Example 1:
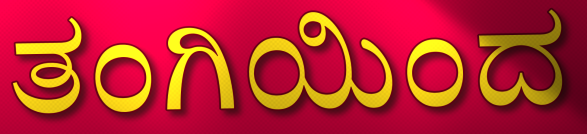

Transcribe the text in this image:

ತಂಗಿಯಿಂದ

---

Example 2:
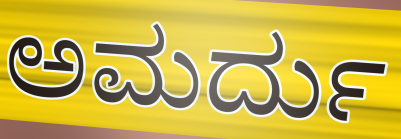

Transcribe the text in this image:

ಅಮರ್ದು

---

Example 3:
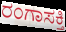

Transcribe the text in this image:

ರಂಗಾಸಕ್ತಿ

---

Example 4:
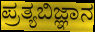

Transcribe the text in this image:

ಪ್ರತ್ಯಬಿಜ್ಞಾನ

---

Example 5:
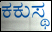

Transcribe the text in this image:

ಕಕುಸ್ಥ